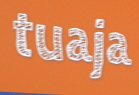
tuaja